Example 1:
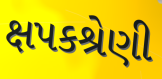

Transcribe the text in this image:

ક્ષપકશ્રેણી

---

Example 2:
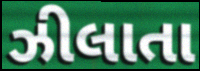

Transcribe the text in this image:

ઝીલાતા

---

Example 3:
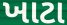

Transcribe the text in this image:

ખાટા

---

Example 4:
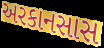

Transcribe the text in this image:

અરકાનસાસ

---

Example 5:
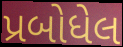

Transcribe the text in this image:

પ્રબોધેલ